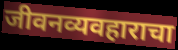
जीवनव्यवहाराचा